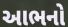
આભનો